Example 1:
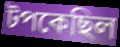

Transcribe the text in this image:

টপকেছিল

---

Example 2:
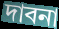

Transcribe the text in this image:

দাবনা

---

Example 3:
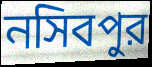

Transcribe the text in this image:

নসিবপুর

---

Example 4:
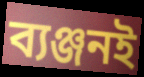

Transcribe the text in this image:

ব্যঞ্জনই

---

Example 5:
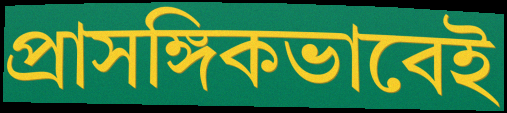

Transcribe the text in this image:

প্রাসঙ্গিকভাবেই